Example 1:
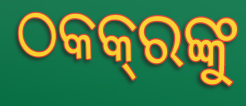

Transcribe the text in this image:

ଠକକ୍‌ରଙ୍କୁ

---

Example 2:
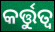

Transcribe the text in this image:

କର୍ତ୍ତୁତ୍ୱ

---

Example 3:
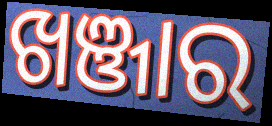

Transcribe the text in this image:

ଖଞ୍ଜାର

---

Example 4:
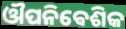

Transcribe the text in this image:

ଔପନିଵେଶିକ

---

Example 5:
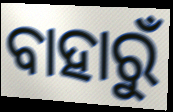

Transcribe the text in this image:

ବାହାରୁଁ